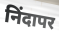
निंदापर